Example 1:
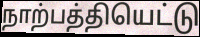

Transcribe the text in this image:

நாற்பத்தியெட்டு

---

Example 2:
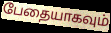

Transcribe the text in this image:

பேதையாகவும்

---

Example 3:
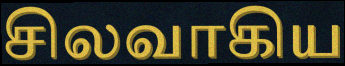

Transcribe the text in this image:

சிலவாகிய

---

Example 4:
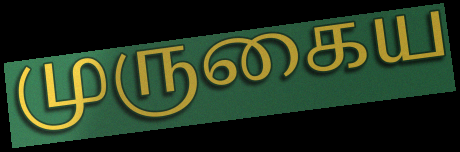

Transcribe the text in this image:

முருகைய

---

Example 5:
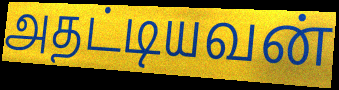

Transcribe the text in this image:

அதட்டியவன்